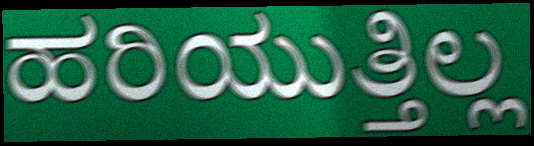
ಹರಿಯುತ್ತಿಲ್ಲ